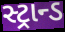
સ્ટ્રાન્ડ